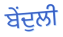
ਬੇਂਦੁਲੀ